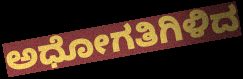
ಅಧೋಗತಿಗಿಳಿದ